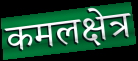
कमलक्षेत्र